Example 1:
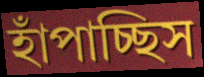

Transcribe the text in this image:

হাঁপাচ্ছিস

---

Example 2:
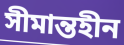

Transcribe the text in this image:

সীমান্তহীন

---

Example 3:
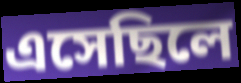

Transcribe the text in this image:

এসেছিলে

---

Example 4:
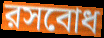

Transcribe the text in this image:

রসবোধ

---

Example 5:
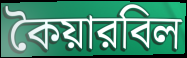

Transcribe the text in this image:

কৈয়ারবিল